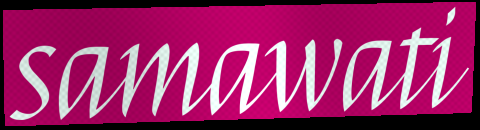
samawati